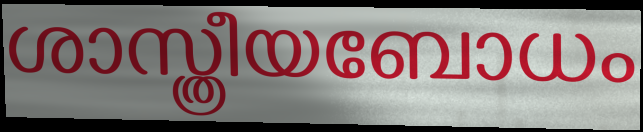
ശാസ്ത്രീയബോധം